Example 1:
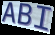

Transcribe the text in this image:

ABI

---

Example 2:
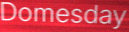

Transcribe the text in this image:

Domesday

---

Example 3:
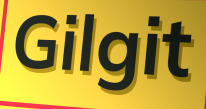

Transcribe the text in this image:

Gilgit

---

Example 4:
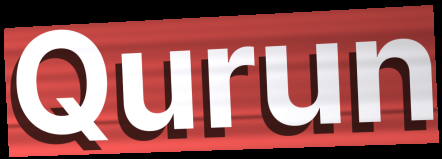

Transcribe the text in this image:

Qurun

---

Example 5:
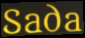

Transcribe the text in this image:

Sada